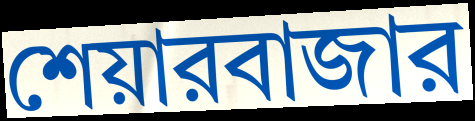
শেয়ারবাজার